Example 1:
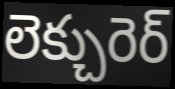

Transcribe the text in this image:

లెక్చురెర్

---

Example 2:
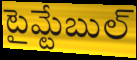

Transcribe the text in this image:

టైమ్టేబుల్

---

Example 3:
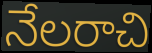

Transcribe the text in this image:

నేలరాచి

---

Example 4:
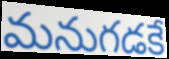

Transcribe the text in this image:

మనుగడకే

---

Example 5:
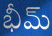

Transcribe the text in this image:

భీమ్